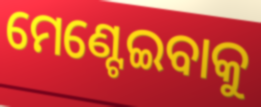
ମେଣ୍ଟେଇବାକୁ